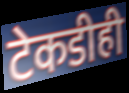
टेकडीही